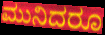
ಮುನಿದರೂ